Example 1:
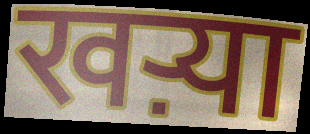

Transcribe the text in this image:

खऱ्‍या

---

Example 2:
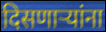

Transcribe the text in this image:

दिसणाऱ्यांना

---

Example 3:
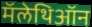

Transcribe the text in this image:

मॅलेथिऑन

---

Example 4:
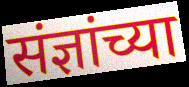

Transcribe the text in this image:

संज्ञांच्या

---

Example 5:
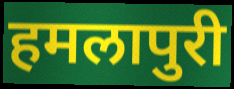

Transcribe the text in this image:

हमलापुरी